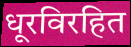
धूरविरहित